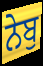
ਨੇਬੁ